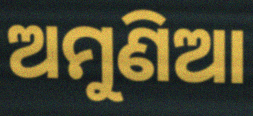
ଅମୁଣିଆ